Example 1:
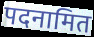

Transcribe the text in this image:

पदनामित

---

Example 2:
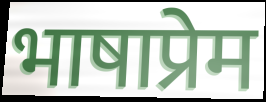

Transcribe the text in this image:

भाषाप्रेम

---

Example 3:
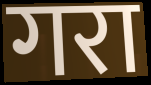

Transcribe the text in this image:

गरा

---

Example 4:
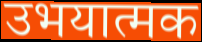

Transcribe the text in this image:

उभयात्मक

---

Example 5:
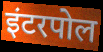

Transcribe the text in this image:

इंटरपोल